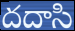
దదాసి